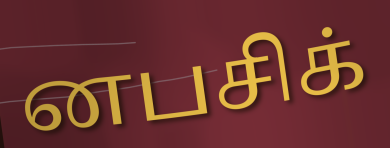
னபசிக்